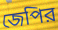
জেপির